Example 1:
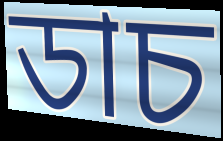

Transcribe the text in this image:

ডাচ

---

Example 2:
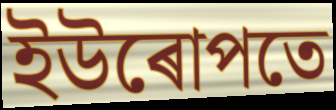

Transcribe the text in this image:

ইউৰোপতে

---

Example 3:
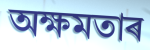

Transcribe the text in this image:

অক্ষমতাৰ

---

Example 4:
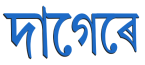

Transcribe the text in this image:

দাগেৰে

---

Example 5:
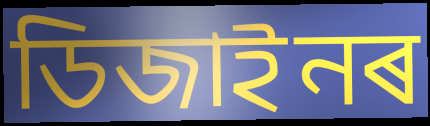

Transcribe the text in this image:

ডিজাইনৰ